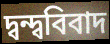
দ্বন্দ্ববিবাদ